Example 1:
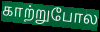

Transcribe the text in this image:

காற்றுபோல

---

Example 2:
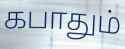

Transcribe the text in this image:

கபாதும்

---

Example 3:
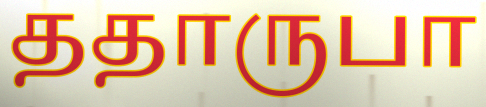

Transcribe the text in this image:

ததாருபா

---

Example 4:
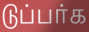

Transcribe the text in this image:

டுப்பர்க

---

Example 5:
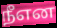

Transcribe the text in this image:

நீஎன